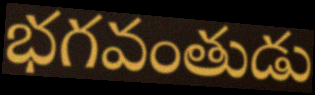
భగవంతుడు